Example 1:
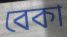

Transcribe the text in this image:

বেকা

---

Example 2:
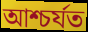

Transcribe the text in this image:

আশ্চৰ্যত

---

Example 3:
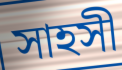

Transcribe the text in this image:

সাহসী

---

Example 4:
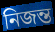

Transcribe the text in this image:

নিজন্ত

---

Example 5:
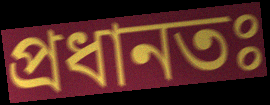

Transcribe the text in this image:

প্ৰধানতঃ